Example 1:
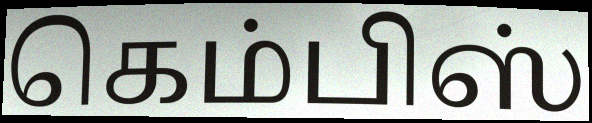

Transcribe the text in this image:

கெம்பிஸ்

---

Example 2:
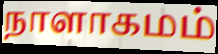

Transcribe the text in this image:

நாளாகமம்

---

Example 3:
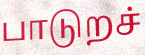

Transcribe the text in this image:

பாடுறச்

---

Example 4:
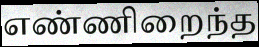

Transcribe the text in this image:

எண்ணிறைந்த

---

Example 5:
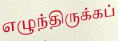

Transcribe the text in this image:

எழுந்திருக்கப்